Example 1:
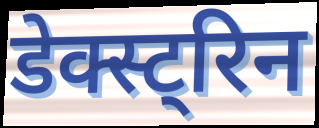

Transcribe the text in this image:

डेक्स्ट्रिन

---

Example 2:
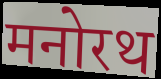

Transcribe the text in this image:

मनोरथ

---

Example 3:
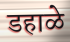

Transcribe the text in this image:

डहाळे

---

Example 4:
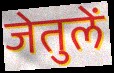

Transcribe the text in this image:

जेतुलें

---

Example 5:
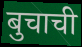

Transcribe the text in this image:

बुचाची